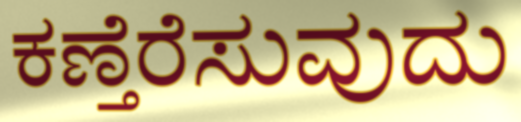
ಕಣ್ತೆರೆಸುವುದು